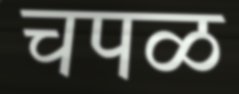
चपळ